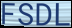
FSDL